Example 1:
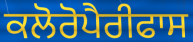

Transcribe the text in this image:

ਕਲੋਰੋਪੈਰੀਫਾਸ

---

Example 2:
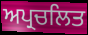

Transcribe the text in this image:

ਅਪ੍ਰਚਲਿਤ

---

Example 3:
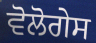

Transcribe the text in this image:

ਵੋਲੋਗੇਸ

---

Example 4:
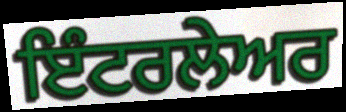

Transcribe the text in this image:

ਇੰਟਰਲੇਅਰ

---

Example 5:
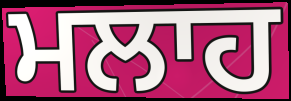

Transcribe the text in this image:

ਮਲਾਹ